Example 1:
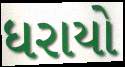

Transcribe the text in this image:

ધરાયો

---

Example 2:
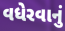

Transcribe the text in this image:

વધેરવાનું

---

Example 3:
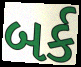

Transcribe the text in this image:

બર્ક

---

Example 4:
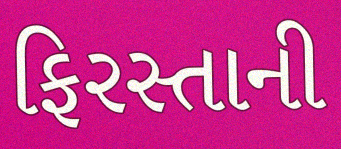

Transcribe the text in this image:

ફિરસ્તાની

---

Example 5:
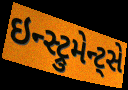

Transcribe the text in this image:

ઇન્સ્ટ્રુમેન્ટ્સે